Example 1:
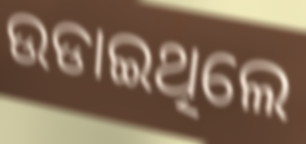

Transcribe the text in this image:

ଉଡାଇଥିଲେ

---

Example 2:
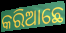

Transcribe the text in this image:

କରିଆଛେ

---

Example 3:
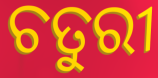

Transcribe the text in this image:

ଚତୁରୀ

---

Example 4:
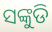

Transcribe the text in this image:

ସଙ୍କୁଡି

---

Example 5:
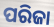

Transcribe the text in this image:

ପରିଜା